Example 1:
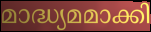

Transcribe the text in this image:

മാദ്ധ്യമമാക്കി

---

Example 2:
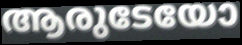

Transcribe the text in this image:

ആരുടേയോ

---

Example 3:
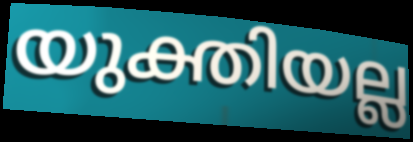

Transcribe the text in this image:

യുക്തിയല്ല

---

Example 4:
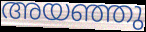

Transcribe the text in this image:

അയഞ്ഞു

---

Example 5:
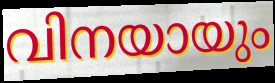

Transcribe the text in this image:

വിനയായും